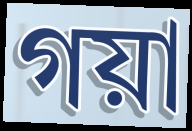
গয়া